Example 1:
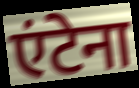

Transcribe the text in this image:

एंटेना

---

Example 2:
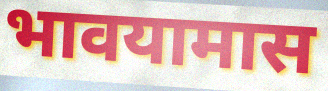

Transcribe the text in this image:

भावयामास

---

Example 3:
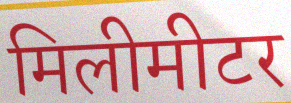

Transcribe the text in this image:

मिलीमीटर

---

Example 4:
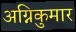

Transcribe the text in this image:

अग्निकुमार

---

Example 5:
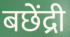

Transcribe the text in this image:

बछेंद्री